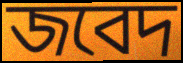
জবেদ